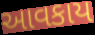
આવકાય